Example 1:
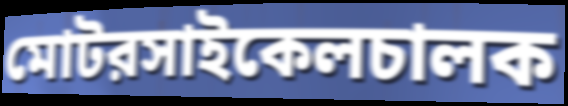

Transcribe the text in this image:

মোটরসাইকেলচালক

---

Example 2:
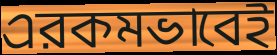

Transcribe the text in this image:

এরকমভাবেই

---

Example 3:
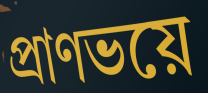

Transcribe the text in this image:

প্রাণভয়ে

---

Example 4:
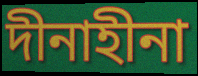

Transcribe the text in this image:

দীনাহীনা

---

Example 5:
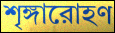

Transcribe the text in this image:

শৃঙ্গারোহণ